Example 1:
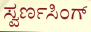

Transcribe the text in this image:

ಸ್ವರ್ಣಸಿಂಗ್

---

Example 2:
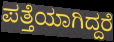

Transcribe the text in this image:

ಪತ್ತೆಯಾಗಿದ್ದರೆ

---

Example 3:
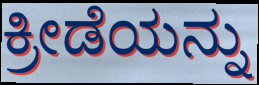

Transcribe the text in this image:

ಕ್ರೀಡೆಯನ್ನು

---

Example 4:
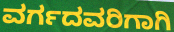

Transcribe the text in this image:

ವರ್ಗದವರಿಗಾಗಿ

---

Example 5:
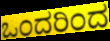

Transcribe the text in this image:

ಒಂದರಿಂದ